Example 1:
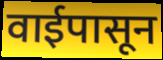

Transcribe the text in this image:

वाईपासून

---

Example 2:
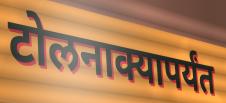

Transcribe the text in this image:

टोलनाक्यापर्यंत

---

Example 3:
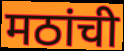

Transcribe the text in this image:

मठांची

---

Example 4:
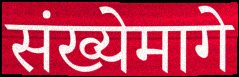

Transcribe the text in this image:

संख्येमागे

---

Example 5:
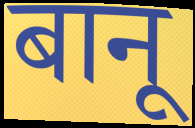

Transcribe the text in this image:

बानू